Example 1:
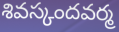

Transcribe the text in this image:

శివస్కందవర్మ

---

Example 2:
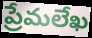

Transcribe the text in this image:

ప్రేమలేఖ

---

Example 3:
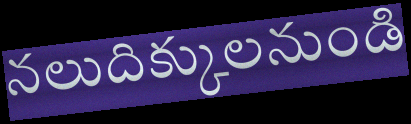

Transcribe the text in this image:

నలుదిక్కులనుండి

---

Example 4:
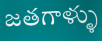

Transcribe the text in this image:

జతగాళ్ళు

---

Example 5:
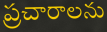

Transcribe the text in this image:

ప్రచారాలను